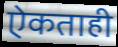
ऐकताही